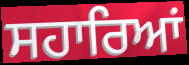
ਸਹਾਰਿਆਂ